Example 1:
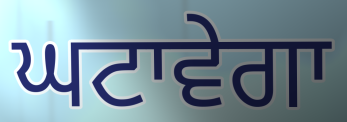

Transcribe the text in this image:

ਘਟਾਵੇਗਾ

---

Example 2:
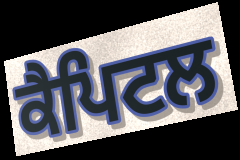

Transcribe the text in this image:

ਕੈਪਿਟਲ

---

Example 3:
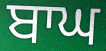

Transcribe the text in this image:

ਬਾਘ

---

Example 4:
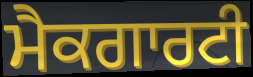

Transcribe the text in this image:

ਮੈਕਗਾਰਟੀ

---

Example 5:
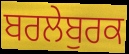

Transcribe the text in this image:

ਬਰਲੇਬੁਰਕ